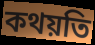
কথয়তি